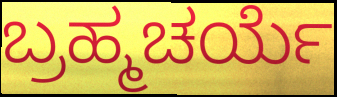
ಬ್ರಹ್ಮಚರ್ಯೆ